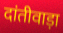
दांतीवाड़ा